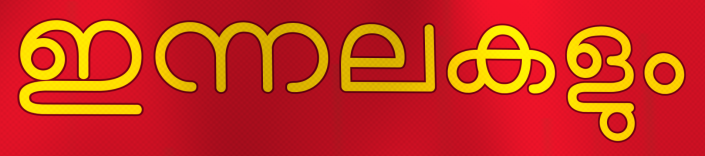
ഇന്നലകളും